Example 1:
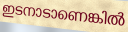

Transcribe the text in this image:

ഇടനാടാണെങ്കിൽ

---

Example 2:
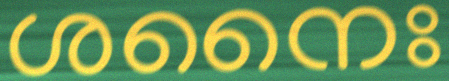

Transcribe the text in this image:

ശനൈഃ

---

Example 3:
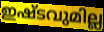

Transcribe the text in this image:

ഇഷ്ടവുമില്ല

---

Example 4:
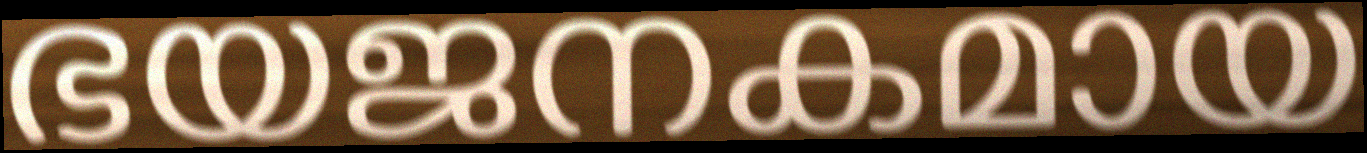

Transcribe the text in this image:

ഭയജനകമായ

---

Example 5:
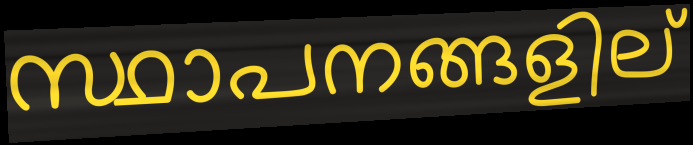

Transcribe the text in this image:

സ്ഥാപനങ്ങളില്